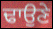
ਢਾਉਣੇ